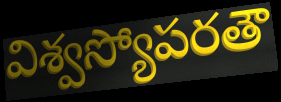
విశ్వస్యోపరతౌ